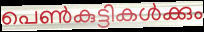
പെൺകുട്ടികൾക്കും